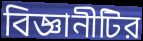
বিজ্ঞানীটির